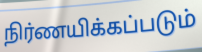
நிர்ணயிக்கப்படும்